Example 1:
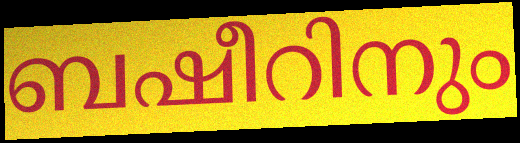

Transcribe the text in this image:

ബഷീറിനും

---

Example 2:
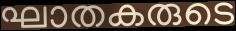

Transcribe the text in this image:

ഘാതകരുടെ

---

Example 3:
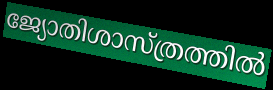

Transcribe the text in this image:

ജ്യോതിശാസ്ത്രത്തിൽ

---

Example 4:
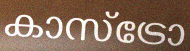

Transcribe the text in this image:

കാസ്ട്രോ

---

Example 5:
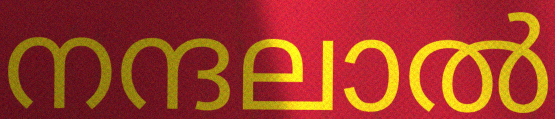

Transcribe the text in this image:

നന്ദലാൽ